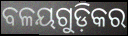
ବଳୟଗୁଡ଼ିକର